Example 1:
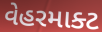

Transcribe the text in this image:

વેહરમાક્ટ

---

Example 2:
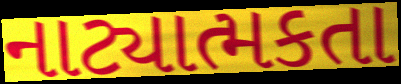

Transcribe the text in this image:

નાટ્યાત્મકતા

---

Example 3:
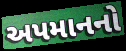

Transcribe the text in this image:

અપમાનનો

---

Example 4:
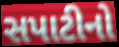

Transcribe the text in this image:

સપાટીનો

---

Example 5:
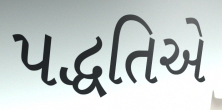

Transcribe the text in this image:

પદ્ધતિએ